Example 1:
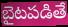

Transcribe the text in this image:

బైటపడితే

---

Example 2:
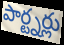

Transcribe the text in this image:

పార్ట్నర్లు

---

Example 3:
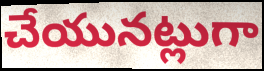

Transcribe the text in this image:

చేయునట్లుగా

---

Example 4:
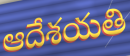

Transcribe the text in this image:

ఆదేశయతి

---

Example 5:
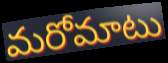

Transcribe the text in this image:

మరోమాటు